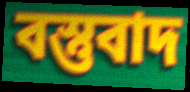
বস্তুবাদ